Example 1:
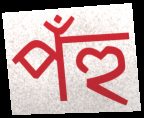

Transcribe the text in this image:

পঁহু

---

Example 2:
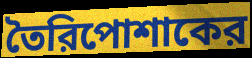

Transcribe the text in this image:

তৈরিপোশাকের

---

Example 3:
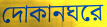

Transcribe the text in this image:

দোকানঘরে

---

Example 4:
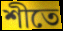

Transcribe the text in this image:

শীতে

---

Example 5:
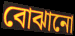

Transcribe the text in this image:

বোঝানো